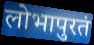
लोभापुरतं